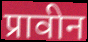
प्रावीन